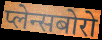
प्लेन्सबोरो